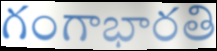
గంగాభారతి